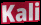
Kali